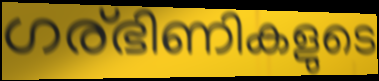
ഗര്ഭിണികളുടെ